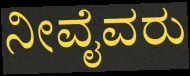
ನೀವೈವರು